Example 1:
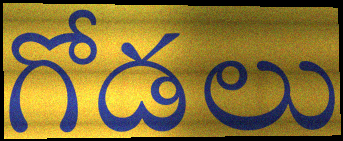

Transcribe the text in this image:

గోడలు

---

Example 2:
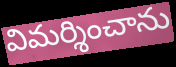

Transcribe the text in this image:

విమర్శించాను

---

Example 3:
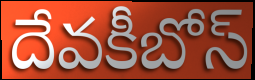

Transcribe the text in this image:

దేవకీబోస్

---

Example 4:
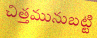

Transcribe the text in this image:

చిత్తమునుబట్టి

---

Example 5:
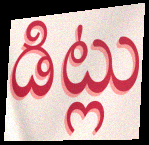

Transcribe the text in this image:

డిట్లు